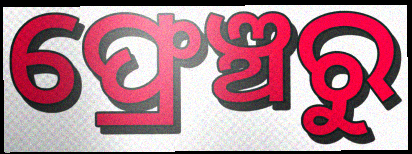
ଫ୍ରେଞ୍ଚରୁ